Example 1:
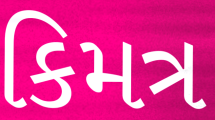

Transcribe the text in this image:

કિમત્ર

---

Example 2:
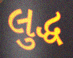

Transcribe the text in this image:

લુદ્ધ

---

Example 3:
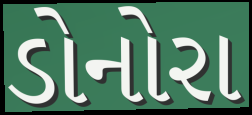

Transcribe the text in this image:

ડોનોરા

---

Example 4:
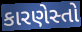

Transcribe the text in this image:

કારણેસ્તો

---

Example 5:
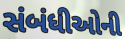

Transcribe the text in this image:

સંબંધીઓની